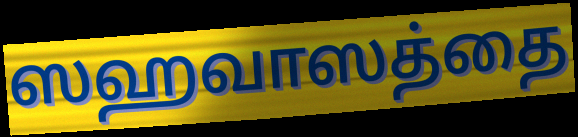
ஸஹவாஸத்தை